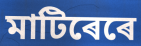
মাটিৰেৰে